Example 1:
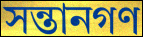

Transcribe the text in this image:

সন্তানগণ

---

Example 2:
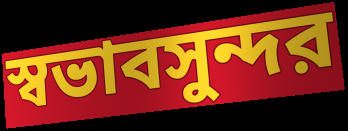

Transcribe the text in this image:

স্বভাবসুন্দর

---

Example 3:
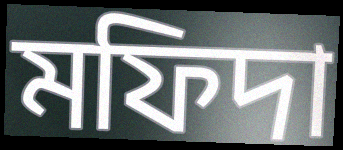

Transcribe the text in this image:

মফিদা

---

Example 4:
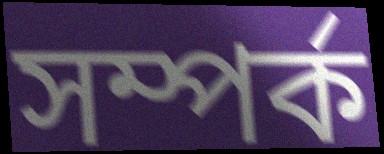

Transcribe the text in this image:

সম্পর্ক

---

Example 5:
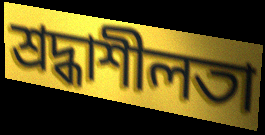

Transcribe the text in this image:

শ্রদ্ধাশীলতা